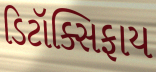
ડિટૉક્સિફાય